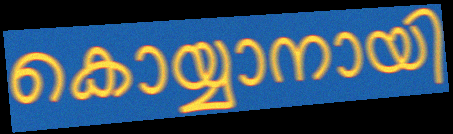
കൊയ്യാനായി